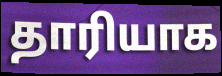
தாரியாக